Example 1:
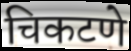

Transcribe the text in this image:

चिकटणे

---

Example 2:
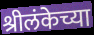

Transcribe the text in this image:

श्रीलंकेच्या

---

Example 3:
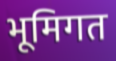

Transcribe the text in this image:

भूमिगत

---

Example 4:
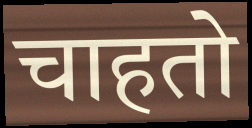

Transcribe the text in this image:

चाहतो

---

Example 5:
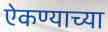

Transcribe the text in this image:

ऐकण्याच्या